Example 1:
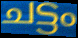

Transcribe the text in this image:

ചട്ടം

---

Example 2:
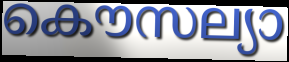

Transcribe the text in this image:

കൌസല്യാ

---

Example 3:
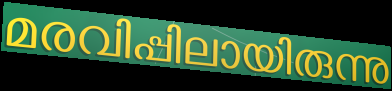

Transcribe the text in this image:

മരവിപ്പിലായിരുന്നു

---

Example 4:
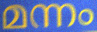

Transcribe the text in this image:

മന്നം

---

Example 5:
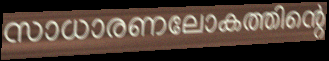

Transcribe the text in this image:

സാധാരണലോകത്തിന്റെ